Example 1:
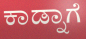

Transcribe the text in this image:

ಕಾಡ್ನಾಗೆ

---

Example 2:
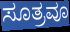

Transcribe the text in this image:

ಸೂತ್ರವೂ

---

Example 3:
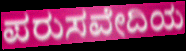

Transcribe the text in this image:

ಪರುಸವೇದಿಯ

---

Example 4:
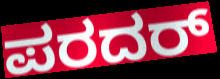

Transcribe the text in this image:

ಪರದರ್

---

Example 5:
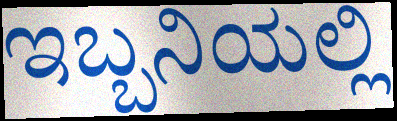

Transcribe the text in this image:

ಇಬ್ಬನಿಯಲ್ಲಿ